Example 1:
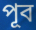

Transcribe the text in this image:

পূব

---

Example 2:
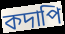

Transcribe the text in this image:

কদাপি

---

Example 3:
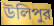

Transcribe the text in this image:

উলিপুর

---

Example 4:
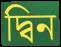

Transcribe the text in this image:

দ্বিন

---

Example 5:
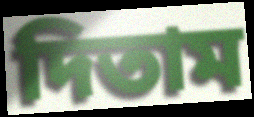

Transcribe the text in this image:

দিতাম